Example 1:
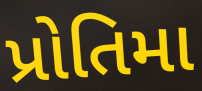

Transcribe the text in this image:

પ્રોતિમા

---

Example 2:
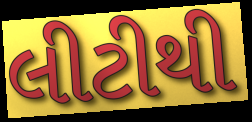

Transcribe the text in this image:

લીટીથી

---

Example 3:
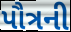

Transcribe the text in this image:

પૌત્રની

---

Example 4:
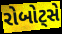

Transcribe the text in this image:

રોબોટ્સે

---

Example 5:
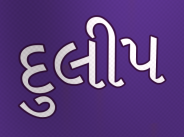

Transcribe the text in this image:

દુલીપ